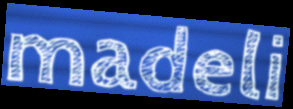
madeli